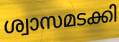
ശ്വാസമടക്കി